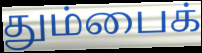
தும்பைக்